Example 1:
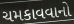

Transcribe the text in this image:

ચમકાવવાનો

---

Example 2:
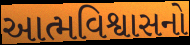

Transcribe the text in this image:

આત્મવિશ્વાસનો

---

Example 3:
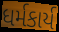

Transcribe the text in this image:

ધર્મકાર્ય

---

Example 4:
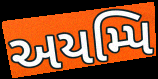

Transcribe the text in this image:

અયમ્પિ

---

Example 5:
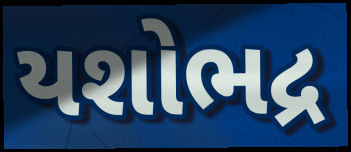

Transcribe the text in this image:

યશોભદ્ર